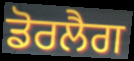
ਡੋਰਲੈਗ